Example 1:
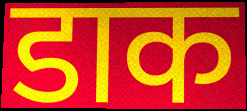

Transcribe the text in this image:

डाक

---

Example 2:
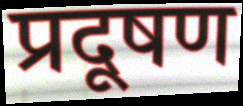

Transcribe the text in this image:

प्रदूषण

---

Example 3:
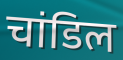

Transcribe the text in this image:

चांडिल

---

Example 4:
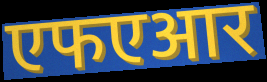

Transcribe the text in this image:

एफएआर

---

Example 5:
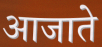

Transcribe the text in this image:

आजाते